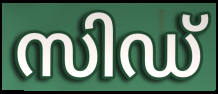
സിഡ്